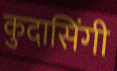
कुदासिंगी